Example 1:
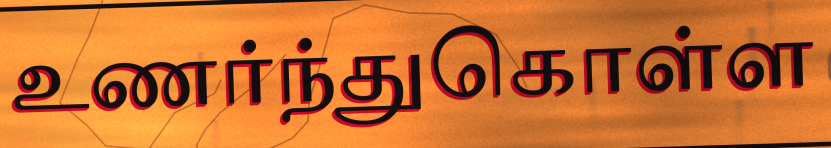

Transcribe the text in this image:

உணர்ந்துகொள்ள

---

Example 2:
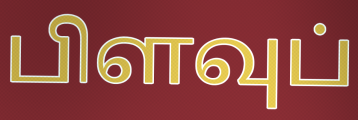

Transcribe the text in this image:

பிளவுப்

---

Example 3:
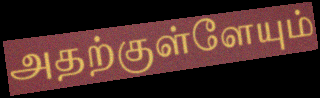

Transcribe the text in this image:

அதற்குள்ளேயும்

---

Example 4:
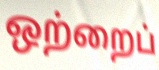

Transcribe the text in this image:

ஒற்றைப்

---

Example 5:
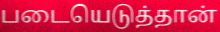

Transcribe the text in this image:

படையெடுத்தான்